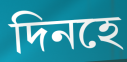
দিনহে